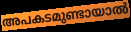
അപകടമുണ്ടായാൽ